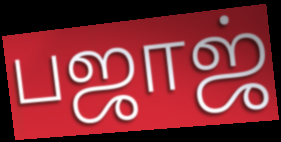
பஜாஜ்